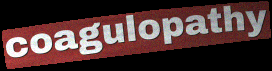
coagulopathy